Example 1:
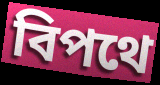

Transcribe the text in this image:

বিপথে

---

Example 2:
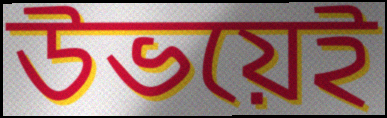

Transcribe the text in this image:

উভয়েই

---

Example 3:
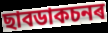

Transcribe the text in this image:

ছাবডাকচনৰ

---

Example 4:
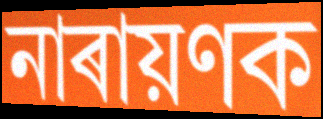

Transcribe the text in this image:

নাৰায়ণক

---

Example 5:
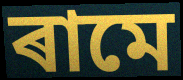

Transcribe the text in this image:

ৰামে